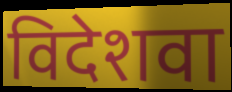
विदेशवा